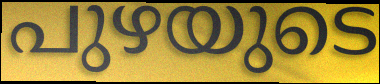
പുഴയുടെ